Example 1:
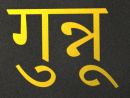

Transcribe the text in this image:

गुन्नू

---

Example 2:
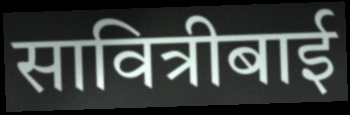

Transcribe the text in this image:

सावित्रीबाई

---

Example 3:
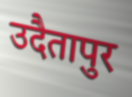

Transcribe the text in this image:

उदैतापुर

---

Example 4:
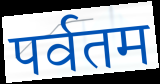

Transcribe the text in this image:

पर्वतम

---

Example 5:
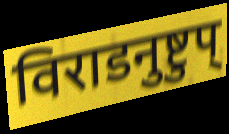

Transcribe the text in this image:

विराडनुष्टुप्